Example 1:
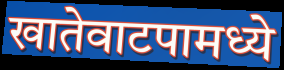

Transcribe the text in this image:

खातेवाटपामध्ये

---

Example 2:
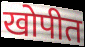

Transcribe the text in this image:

खोपीत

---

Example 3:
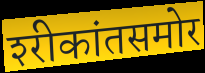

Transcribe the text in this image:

श्रीकांतसमोर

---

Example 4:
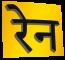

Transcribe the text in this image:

रेन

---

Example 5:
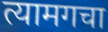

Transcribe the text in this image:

त्यामगचा